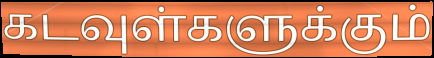
கடவுள்களுக்கும்